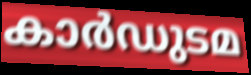
കാർഡുടമ